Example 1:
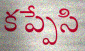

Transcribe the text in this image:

కప్పేసి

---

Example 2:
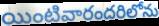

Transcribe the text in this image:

యింటివారందరిలోను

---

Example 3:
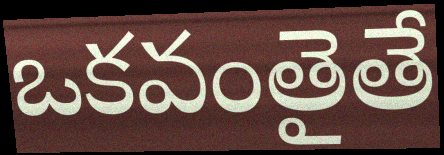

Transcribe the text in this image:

ఒకవంతైతే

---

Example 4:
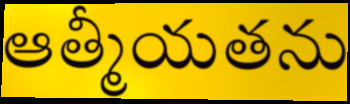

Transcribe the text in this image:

ఆత్మీయతను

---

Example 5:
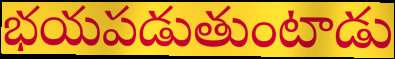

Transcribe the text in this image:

భయపడుతుంటాడు